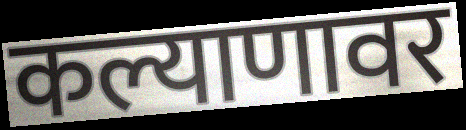
कल्याणावर